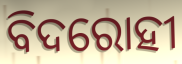
ବିଦରୋହୀ